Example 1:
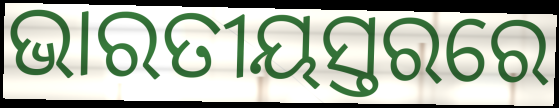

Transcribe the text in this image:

ଭାରତୀୟସ୍ତରରେ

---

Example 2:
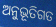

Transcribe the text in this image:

ଅନୁଭୂତିଗତ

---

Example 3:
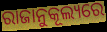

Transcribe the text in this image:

ରାଜାନୁକୂଲ୍ୟରେ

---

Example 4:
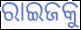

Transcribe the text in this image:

ରାଇଜକୁ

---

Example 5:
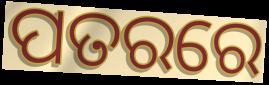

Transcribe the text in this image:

ପତରରେ